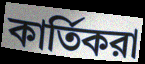
কার্তিকরা